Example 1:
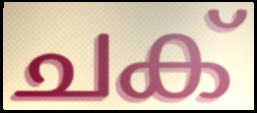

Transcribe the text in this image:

ചക്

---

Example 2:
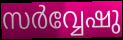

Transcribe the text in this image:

സർവ്വേഷു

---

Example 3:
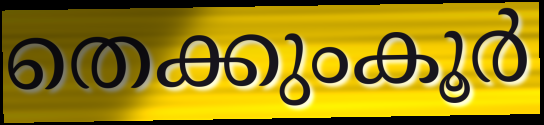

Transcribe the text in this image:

തെക്കുംകൂർ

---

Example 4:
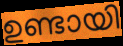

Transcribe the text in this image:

ഉണ്ടായി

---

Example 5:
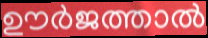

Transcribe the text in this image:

ഊർജത്താൽ